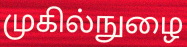
முகில்நுழை